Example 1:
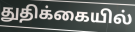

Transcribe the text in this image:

துதிக்கையில்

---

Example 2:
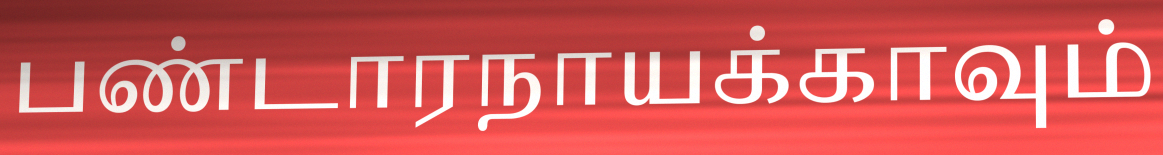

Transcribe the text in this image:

பண்டாரநாயக்காவும்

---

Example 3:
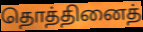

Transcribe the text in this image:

தொத்தினைத்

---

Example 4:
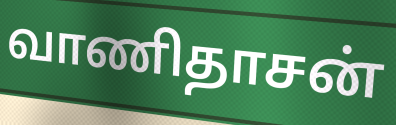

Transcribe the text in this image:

வாணிதாசன்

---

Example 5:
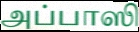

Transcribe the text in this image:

அப்பாஸி